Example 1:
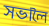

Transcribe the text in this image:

সভালৈ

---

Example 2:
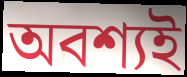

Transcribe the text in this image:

অবশ্যই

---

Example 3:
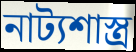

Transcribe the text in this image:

নাট্যশাস্ত্ৰ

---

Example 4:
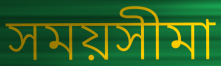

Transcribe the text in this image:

সময়সীমা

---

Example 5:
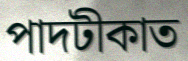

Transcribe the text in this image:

পাদটীকাত